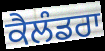
ਕੈਲੰਡਰਾ